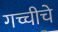
गच्चीचे